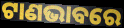
ଟାଣଭାବରେ